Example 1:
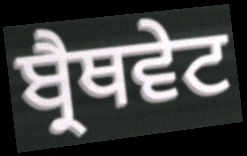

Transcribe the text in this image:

ਬ੍ਰੈਥਵੇਟ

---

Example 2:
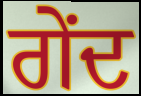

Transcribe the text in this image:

ਗੇਂਦ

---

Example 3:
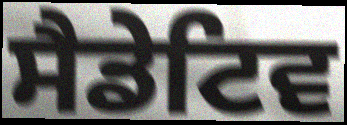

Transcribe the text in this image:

ਸੈਡੇਟਿਵ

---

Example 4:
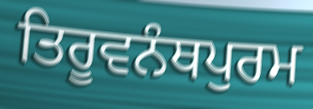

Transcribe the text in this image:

ਤਿਰੂਵਨੰਥਪੁਰਮ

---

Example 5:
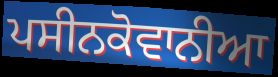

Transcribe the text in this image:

ਪਸੀਨਕੋਵਾਨੀਆ